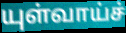
யுள்வாய்ச்